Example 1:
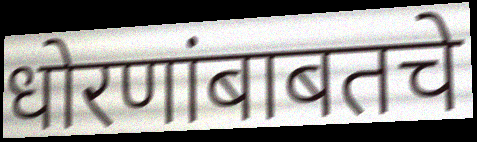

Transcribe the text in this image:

धोरणांबाबतचे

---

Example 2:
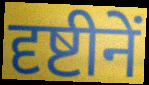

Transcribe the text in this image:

दृष्टीनें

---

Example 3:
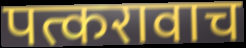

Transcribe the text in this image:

पत्करावाच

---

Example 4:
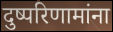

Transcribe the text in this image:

दुष्परिणामांना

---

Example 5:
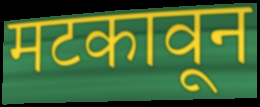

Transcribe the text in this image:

मटकावून